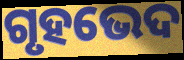
ଗୃହଭେଦ